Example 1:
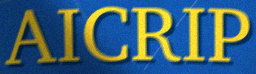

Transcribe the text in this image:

AICRIP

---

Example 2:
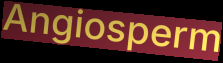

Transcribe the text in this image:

Angiosperm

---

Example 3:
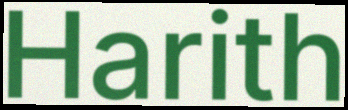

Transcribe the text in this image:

Harith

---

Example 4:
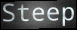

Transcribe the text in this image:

Steep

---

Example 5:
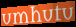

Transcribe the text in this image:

umhutu